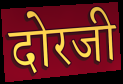
दोरजी